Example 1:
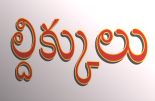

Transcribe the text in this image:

ల్దిక్కులు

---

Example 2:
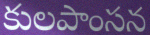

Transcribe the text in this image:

కులపాంసన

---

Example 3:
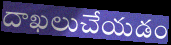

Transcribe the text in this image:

దాఖలుచేయడం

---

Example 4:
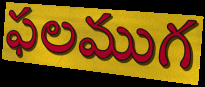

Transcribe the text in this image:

ఫలముగ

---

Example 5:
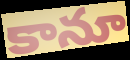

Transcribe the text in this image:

కానూ